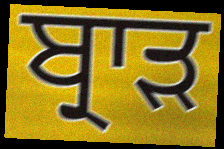
ਬ੍ਰਾੜ